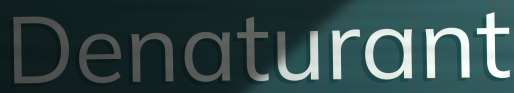
Denaturant